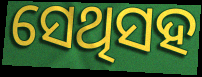
ସେଥିସହ